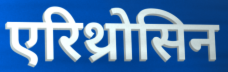
एरिथ्रोसिन